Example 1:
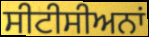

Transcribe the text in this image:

ਸੀਟੀਸੀਅਨਾਂ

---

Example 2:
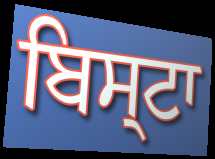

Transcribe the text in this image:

ਬਿਸ੍ਟਾ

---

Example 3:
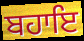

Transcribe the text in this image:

ਬਹਾਇ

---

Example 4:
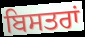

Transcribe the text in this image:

ਬਿਸਤਰਾਂ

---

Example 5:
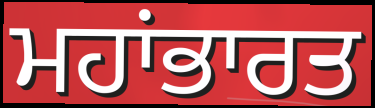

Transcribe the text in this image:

ਮਹਾਂਭਾਰਤ